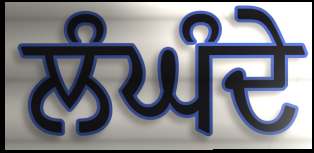
ਲੰਘੰਦੇ